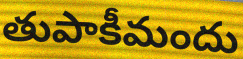
తుపాకీమందు